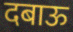
दबाऊ